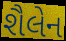
શૈલેન